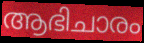
ആഭിചാരം